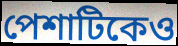
পেশাটিকেও